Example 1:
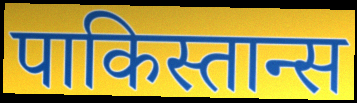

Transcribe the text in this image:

पाकिस्तान्स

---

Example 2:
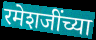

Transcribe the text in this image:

रमेशजींच्या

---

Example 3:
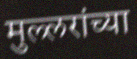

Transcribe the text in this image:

मुल्लरांच्या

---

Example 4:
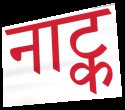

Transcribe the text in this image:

नाट्क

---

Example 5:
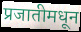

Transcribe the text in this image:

प्रजातीमधून